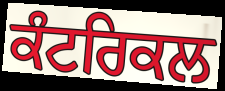
ਕੰਟਰਿਕਲ